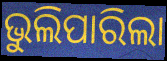
ଭୁଲିପାରିଲା